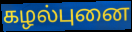
கழல்புனை